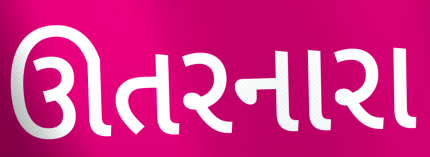
ઊતરનારા